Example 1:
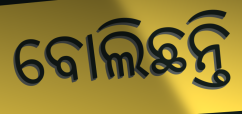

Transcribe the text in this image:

ବୋଲିଛନ୍ତି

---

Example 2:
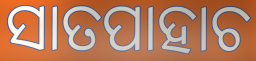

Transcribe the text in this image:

ସାତପାହାଚ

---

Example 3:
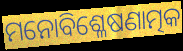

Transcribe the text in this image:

ମନୋବିଶ୍ଳେଷଣାତ୍ମକ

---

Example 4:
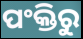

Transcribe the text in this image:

ପଂକ୍ତିରୁ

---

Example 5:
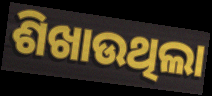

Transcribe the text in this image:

ଶିଖାଉଥିଲା